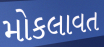
મોકલાવત